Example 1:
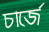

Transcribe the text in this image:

চার্জে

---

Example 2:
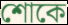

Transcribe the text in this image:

শোকে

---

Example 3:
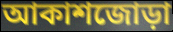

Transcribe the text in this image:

আকাশজোড়া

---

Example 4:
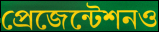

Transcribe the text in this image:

প্রেজেন্টেশনও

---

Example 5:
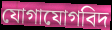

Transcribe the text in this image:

যোগাযোগবিদ